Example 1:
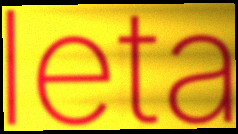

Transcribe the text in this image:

leta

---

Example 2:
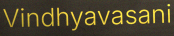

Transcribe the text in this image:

Vindhyavasani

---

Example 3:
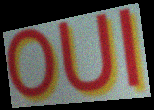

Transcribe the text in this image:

OUI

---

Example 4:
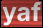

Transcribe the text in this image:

yaf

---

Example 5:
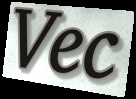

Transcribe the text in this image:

Vec